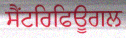
ਸੈਂਟਰਿਫਿਊਗਲ